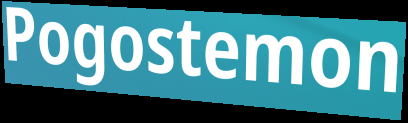
Pogostemon